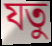
যতু